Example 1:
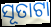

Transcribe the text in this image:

ସୂତାଟା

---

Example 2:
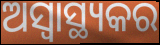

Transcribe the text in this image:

ଅସ୍ୱାସ୍ଥ୍ୟକର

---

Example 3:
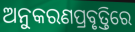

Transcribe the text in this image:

ଅନୁକରଣପ୍ରବୃତ୍ତିରେ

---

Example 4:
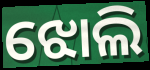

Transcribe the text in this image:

ଝୋଲି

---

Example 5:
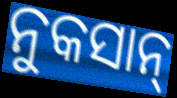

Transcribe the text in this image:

ନୁକସାନ୍